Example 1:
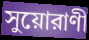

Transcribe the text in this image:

সুয়োরাণী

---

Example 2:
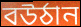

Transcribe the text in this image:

বউঠান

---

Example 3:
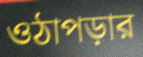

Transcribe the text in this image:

ওঠাপড়ার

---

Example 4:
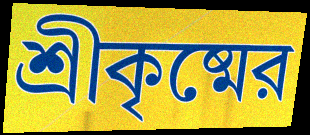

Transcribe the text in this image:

শ্রীকৃষ্মের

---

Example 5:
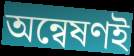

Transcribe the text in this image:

অন্বেষণই